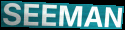
SEEMAN